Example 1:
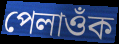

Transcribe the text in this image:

পেলাওঁক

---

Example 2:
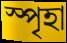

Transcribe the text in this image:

স্পৃহা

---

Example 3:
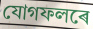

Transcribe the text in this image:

যোগফলৰে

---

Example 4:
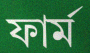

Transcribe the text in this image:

ফাৰ্ম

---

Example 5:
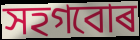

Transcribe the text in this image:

সহগবোৰ